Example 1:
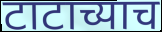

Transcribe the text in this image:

टाटाच्याच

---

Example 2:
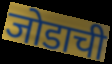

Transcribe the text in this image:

जोडाची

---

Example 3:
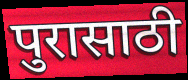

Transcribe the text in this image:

पुरासाठी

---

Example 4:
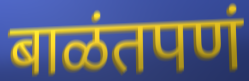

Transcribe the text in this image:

बाळंतपणं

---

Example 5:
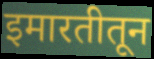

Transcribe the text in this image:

इमारतीतून